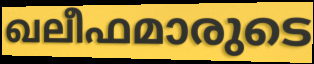
ഖലീഫമാരുടെ